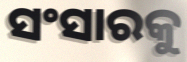
ସଂସାରକୁ